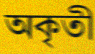
অকৃতী